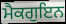
ਮੈਕਗੁਇਨ